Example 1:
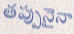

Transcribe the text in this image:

తప్పునైనా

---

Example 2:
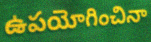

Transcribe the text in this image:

ఉపయోగించినా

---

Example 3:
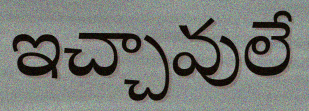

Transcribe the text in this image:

ఇచ్చావులే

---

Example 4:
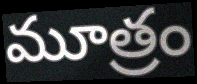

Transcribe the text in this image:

మూత్రం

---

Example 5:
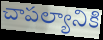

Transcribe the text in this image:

చాపల్యానికి